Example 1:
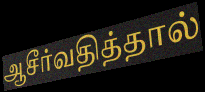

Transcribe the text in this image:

ஆசீர்வதித்தால்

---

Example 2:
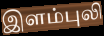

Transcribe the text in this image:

இளம்புலி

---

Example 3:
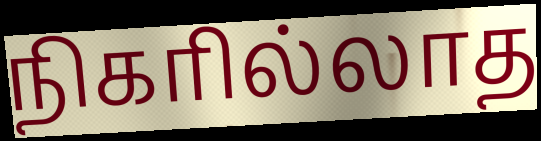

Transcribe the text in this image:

நிகரில்லாத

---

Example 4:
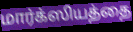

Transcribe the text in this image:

மார்க்ஸியத்தை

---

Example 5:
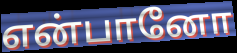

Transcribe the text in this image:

என்பானோ